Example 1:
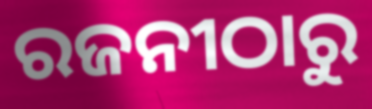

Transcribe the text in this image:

ରଜନୀଠାରୁ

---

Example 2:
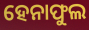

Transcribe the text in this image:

ହେନାଫୁଲ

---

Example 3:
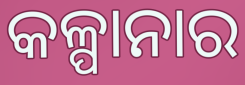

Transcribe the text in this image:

କଳ୍ପାନାର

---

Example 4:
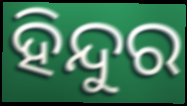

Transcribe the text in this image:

ହିନ୍ଦୁର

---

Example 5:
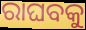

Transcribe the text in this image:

ରାଘବକୁ